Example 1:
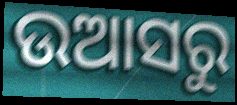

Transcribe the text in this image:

ଉଆସରୁ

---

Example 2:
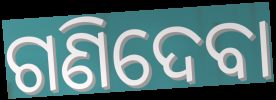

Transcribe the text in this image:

ଗଣିଦେବା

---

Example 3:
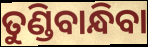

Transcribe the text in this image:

ତୁଣ୍ଡିବାନ୍ଧିବା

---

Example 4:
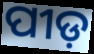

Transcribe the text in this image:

ପୀଡ଼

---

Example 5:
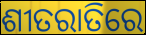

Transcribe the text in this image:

ଶୀତରାତିରେ